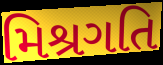
મિશ્રગતિ